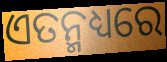
ଏତନ୍ମଧ୍ୟରେ